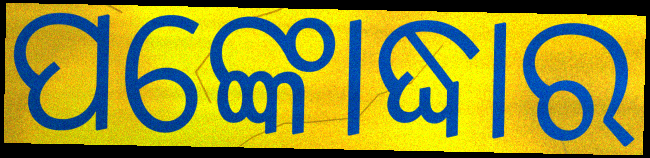
ପଙ୍କୋଦ୍ଧାର